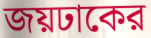
জয়ঢাকের